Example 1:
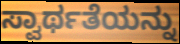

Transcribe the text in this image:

ಸ್ವಾರ್ಥತೆಯನ್ನು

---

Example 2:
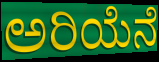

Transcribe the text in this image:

ಅರಿಯೆನೆ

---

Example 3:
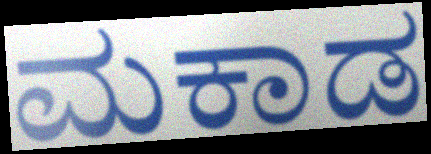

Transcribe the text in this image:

ಮಕಾಡ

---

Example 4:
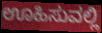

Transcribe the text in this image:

ಊಹಿಸುವಲ್ಲಿ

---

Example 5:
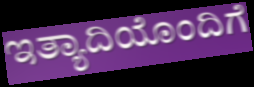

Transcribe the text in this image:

ಇತ್ಯಾದಿಯೊಂದಿಗೆ